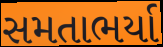
સમતાભર્યા